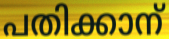
പതിക്കാന്